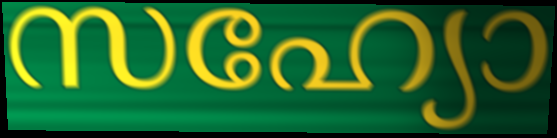
സഹ്യോ